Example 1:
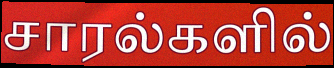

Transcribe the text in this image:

சாரல்களில்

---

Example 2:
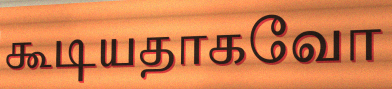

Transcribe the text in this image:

கூடியதாகவோ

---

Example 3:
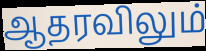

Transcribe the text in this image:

ஆதரவிலும்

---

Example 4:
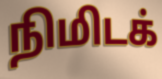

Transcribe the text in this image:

நிமிடக்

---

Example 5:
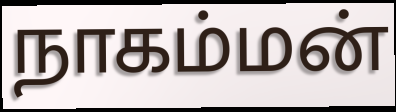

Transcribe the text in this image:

நாகம்மன்